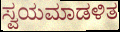
ಸ್ವಯಮಾಡಳಿತ